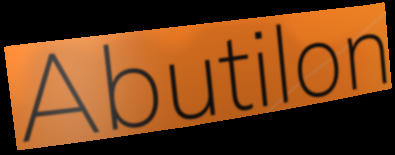
Abutilon